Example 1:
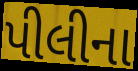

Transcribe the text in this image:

પીલીના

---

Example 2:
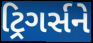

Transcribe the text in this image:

ટ્રિગર્સને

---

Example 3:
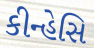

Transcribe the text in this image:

કીન્હેસિ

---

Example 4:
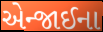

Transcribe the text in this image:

એન્જાઈના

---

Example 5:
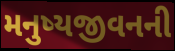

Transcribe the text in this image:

મનુષ્યજીવનની